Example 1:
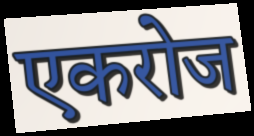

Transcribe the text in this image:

एकरोज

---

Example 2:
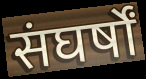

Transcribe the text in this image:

संघर्षों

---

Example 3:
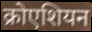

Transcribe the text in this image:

क्रोएशियन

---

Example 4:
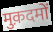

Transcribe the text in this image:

मुक़दमों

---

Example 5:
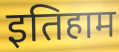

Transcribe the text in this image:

इतिहाम